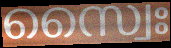
സ്വൈഃ